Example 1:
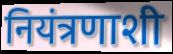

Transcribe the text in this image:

नियंत्रणाशी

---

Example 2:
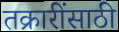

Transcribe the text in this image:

तक्रारींसाठी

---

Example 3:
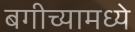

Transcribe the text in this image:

बगीच्यामध्ये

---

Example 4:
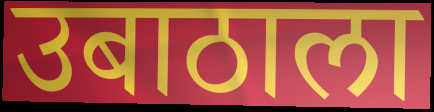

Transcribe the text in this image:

उबाठाला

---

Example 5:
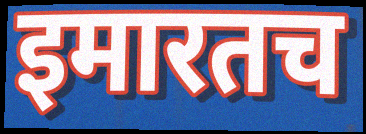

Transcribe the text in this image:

इमारतच